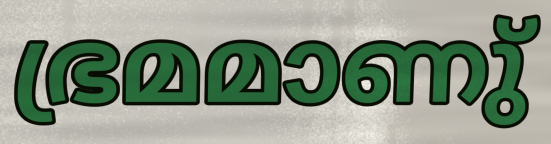
ഭ്രമമാണു്